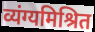
व्यंग्यमिश्रित